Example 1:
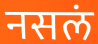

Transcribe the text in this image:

नसलं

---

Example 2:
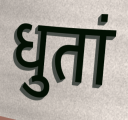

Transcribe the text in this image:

धुतां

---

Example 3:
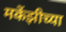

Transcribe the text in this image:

मकेंझीच्या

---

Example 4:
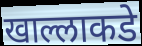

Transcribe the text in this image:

खाल्लाकडे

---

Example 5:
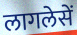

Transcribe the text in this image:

लागलेसें